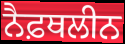
ਨੈਫ਼ਥਲੀਨ